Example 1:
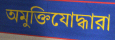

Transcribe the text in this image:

অমুক্তিযোদ্ধারা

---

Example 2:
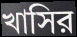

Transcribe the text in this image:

খাসির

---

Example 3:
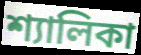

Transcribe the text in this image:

শ্যালিকা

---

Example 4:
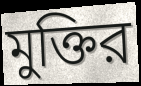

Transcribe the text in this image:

মুক্তির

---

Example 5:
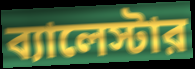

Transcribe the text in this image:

ব্যালেস্টার